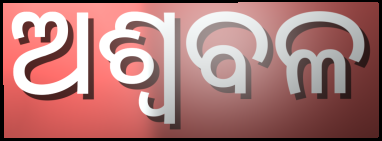
ଅଶ୍ୱବଳ